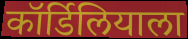
कॉर्डिलियाला